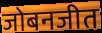
जोबनजीत